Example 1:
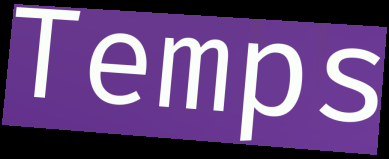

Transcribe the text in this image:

Temps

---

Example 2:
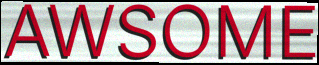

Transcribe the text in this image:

AWSOME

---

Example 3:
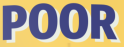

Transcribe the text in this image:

POOR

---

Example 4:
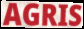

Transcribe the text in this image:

AGRIS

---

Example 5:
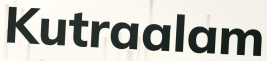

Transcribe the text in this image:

Kutraalam